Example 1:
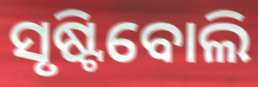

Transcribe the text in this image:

ସୃଷ୍ଟିବୋଲି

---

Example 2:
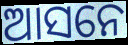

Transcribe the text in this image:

ଆସନେ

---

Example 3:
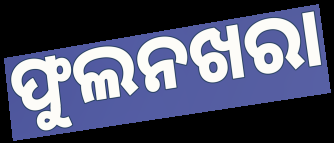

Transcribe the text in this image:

ଫୁଲନଖରା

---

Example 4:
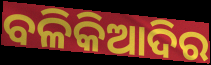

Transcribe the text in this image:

ବଳିକିଆଦିର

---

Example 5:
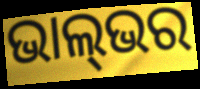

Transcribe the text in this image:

ଭାଲ୍‌ଭର